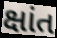
ક્ષાંત